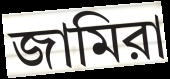
জামিরা